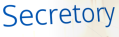
Secretory